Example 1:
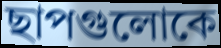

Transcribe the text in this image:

ছাপগুলোকে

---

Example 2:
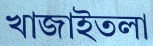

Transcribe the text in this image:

খাজাইতলা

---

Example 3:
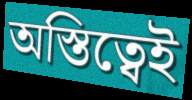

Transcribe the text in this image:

অস্তিত্বেই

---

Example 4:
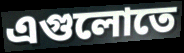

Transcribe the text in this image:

এগুলোতে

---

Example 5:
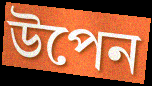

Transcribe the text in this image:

উপেন